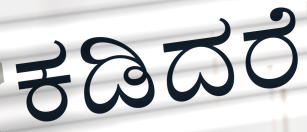
ಕಡಿದರೆ